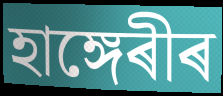
হাঙ্গেৰীৰ